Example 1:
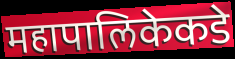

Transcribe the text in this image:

महापालिकेकडे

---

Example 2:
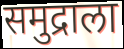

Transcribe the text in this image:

समुद्राला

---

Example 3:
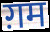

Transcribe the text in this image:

ग़म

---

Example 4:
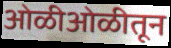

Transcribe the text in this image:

ओळीओळीतून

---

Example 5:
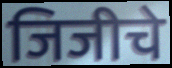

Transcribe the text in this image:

जिजीचे